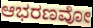
ಆಭರಣವೋ